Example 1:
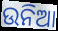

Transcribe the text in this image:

ଉନିଆ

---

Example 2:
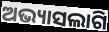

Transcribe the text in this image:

ଅଭ୍ୟାସଲାଗି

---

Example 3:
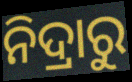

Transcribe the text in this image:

ନିଦ୍ରାରୁ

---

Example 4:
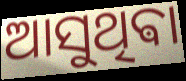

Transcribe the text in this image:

ଆସୁଥିଵା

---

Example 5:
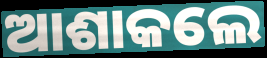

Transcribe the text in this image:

ଆଶାକଲେ